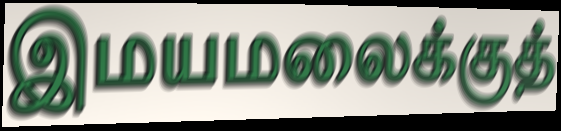
இமயமலைக்குத்